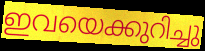
ഇവയെക്കുറിച്ചു